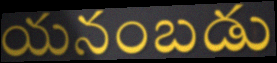
యనంబడు